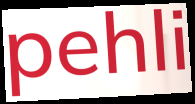
pehli